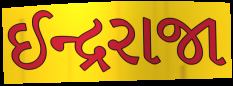
ઈન્દ્રરાજા